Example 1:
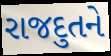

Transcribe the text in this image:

રાજદુતને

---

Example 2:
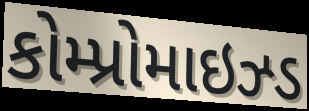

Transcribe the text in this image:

કોમ્પ્રોમાઇઝ્ડ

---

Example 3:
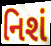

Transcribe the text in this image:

નિશં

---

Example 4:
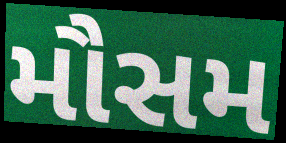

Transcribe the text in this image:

મૌસમ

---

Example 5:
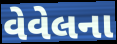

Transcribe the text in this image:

વેવેલના